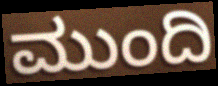
ಮುಂದಿ